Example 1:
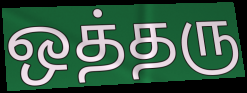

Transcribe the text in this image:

ஒத்தரு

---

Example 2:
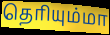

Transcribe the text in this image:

தெரியும்மா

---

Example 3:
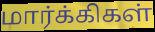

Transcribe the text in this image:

மார்க்கிகள்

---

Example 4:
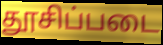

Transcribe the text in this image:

தூசிப்படை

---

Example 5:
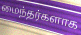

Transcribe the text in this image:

மைந்தர்களாக